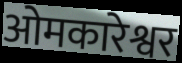
ओमकारेश्वर